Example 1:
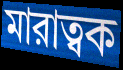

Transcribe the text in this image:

মারাত্বক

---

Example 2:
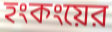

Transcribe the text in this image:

হংকংয়ের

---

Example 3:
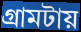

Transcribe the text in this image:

গ্রামটায়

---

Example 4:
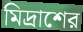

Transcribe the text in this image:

মিদ্রাশের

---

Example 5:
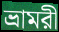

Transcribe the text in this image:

ভ্রামরী